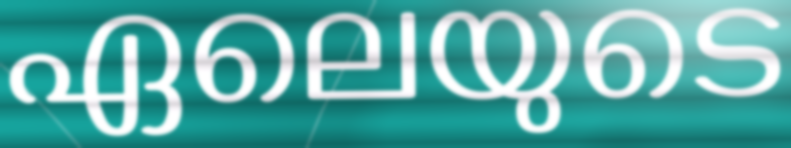
ഏലെയുടെ